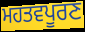
ਮਹਤਵਪੂਰਣ